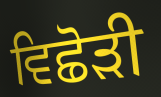
ਵਿਛੋੜੀ